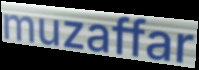
muzaffar